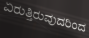
ಏರುತ್ತಿರುವುದರಿಂದ